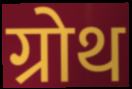
ग्रोथ